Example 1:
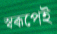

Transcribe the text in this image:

স্বৰূপেই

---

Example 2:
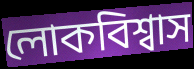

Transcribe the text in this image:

লোকবিশ্বাস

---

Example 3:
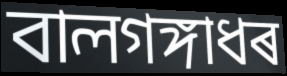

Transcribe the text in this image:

বালগঙ্গাধৰ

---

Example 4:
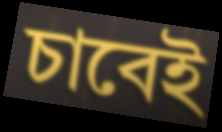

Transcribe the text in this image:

চাবেই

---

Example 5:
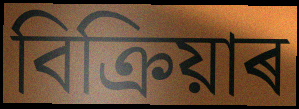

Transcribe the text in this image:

বিক্ৰিয়াৰ